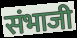
संभाजी